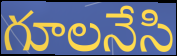
గూలనేసి